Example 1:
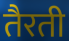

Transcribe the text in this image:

तैरती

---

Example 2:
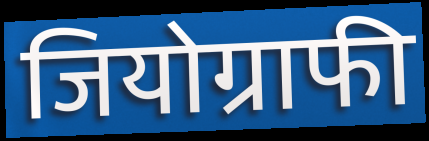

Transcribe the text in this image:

जियोग्राफी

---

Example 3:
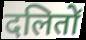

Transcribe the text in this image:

दलितों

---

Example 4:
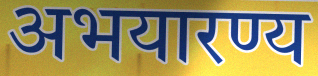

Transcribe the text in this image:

अभयारण्य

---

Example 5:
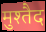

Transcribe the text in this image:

मुश्तैद